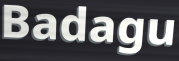
Badagu